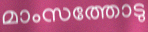
മാംസത്തോടു